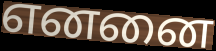
எனனை